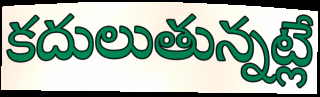
కదులుతున్నట్లే